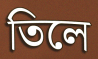
তিলে